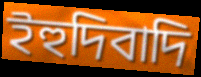
ইহুদিবাদি